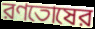
রণতোষের